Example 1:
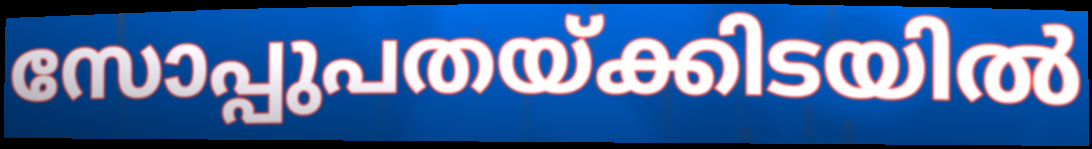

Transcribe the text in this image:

സോപ്പുപതയ്ക്കിടയിൽ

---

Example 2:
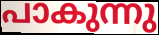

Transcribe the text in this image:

പാകുന്നു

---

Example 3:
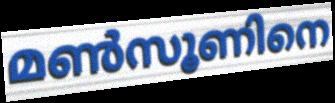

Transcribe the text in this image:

മൺസൂണിനെ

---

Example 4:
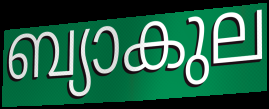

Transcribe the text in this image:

ബ്യാകുല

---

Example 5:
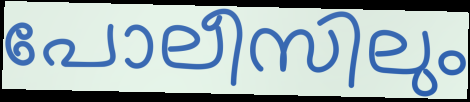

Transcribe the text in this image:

പോലീസിലും